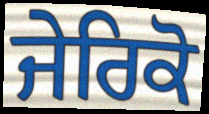
ਜੇਰਿਕੋ